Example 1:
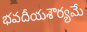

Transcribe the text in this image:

భవదీయశౌర్యమే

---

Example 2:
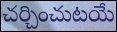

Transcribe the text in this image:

చర్చించుటయే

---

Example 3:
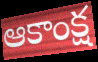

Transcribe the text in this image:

ఆకాంక్ష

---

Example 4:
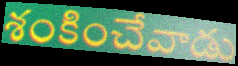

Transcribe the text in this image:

శంకించేవాడు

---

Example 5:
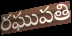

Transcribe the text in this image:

రఘుపతి